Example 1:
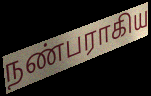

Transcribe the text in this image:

நண்பராகிய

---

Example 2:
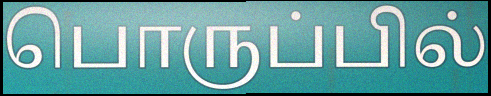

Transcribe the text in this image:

பொருப்பில்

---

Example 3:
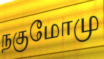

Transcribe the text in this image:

நகுமோமு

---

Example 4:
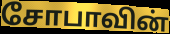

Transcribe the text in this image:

சோபாவின்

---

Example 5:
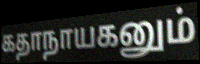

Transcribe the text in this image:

கதாநாயகனும்